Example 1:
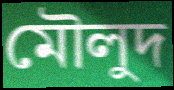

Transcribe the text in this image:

মৌলুদ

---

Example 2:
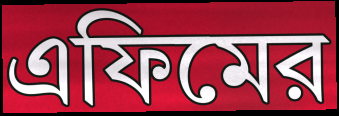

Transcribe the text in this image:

এফিমের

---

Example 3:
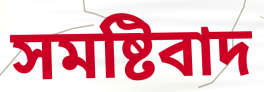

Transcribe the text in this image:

সমষ্টিবাদ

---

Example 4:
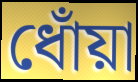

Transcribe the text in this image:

ধোঁয়া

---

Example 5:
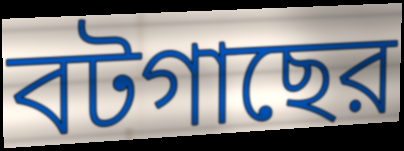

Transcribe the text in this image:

বটগাছের